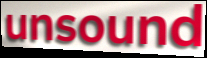
unsound